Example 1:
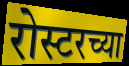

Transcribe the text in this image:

रोस्टरच्या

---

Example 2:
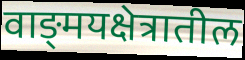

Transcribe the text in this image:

वाङ्मयक्षेत्रातील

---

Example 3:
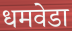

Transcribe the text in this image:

धमवेडा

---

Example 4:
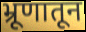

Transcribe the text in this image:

भ्रूणातून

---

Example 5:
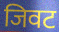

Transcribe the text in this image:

जिवट